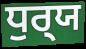
ਧੁਰ੍‍ਯ